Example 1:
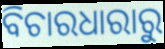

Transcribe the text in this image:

ବିଚାରଧାରାରୁ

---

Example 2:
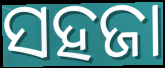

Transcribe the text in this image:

ସହଜା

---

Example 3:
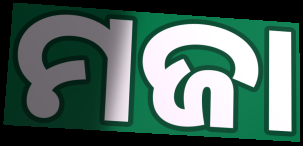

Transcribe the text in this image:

ମଜା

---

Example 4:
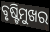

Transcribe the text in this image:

ବୃଷ୍ଟିମୁଖର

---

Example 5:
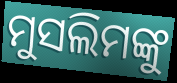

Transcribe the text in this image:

ମୁସଲିମଙ୍କୁ